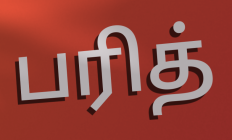
பரித்